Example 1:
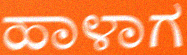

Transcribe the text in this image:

ಹಾಳಾಗ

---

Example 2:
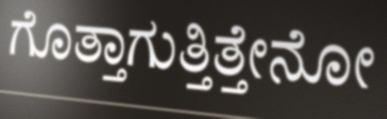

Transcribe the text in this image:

ಗೊತ್ತಾಗುತ್ತಿತ್ತೇನೋ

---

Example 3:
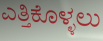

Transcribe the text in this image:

ಎತ್ತಿಕೊಳ್ಳಲು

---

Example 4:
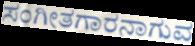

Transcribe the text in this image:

ಸಂಗೀತಗಾರನಾಗುವ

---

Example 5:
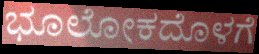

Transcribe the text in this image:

ಭೂಲೋಕದೊಳಗೆ